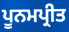
ਪੂਨਮਪ੍ਰੀਤ